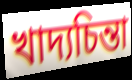
খাদ্যচিন্তা